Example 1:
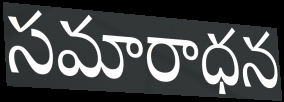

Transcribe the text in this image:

సమారాధన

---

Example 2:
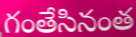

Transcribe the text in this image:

గంతేసినంత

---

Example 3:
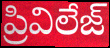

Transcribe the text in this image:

ప్రివిలేజ్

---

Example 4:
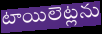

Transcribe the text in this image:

టాయిలెట్లను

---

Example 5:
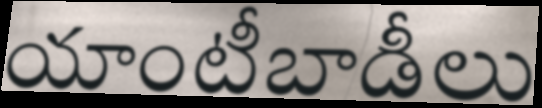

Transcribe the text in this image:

యాంటీబాడీలు